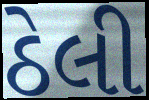
ઠેલી